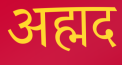
अह्मद